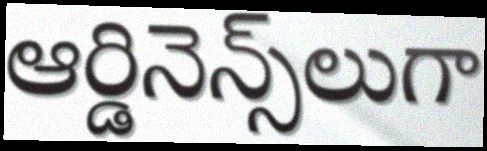
ఆర్డినెన్స్‌లుగా